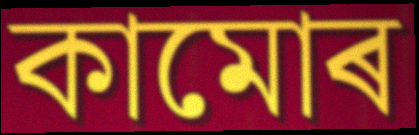
কামোৰ